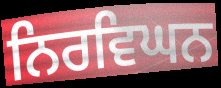
ਨਿਰਵਿਘਨ